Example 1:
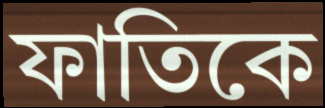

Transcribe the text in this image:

ফাতিকে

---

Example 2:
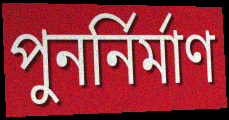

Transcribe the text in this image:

পুনর্নির্মাণ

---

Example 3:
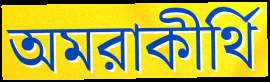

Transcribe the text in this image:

অমরাকীর্থি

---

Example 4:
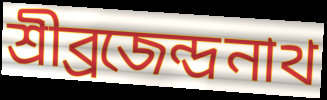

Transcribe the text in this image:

শ্রীব্রজেন্দ্রনাথ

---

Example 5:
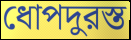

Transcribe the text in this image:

ধোপদুরস্ত